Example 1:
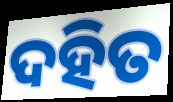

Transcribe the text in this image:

ଦହିତ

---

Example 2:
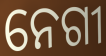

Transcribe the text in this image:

ନେଗୀ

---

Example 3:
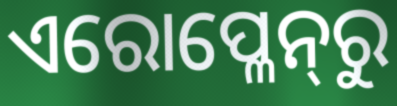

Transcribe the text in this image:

ଏରୋପ୍ଳେନ୍‍ରୁ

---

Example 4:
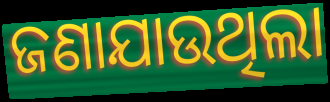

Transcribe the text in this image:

ଜଣାଯାଉଥିଲା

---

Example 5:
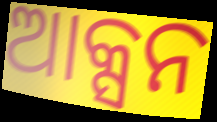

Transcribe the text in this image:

ଆକ୍ସନ